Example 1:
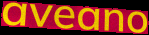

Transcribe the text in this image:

aveano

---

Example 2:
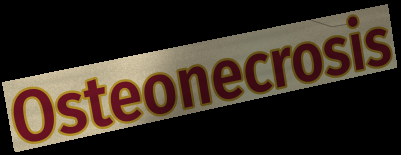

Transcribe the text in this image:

Osteonecrosis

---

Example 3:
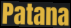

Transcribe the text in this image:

Patana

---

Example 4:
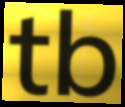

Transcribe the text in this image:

tb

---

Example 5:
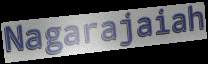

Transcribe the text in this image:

Nagarajaiah